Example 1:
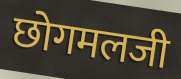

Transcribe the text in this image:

छोगमलजी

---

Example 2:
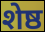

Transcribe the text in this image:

शेष्ठ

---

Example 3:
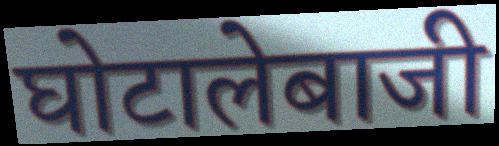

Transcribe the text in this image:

घोटालेबाजी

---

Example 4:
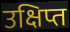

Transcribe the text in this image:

उक्षिप्त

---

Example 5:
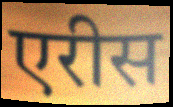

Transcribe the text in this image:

एरीस